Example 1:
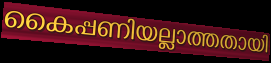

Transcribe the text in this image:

കൈപ്പണിയല്ലാത്തതായി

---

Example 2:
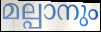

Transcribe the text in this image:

മല്പാനും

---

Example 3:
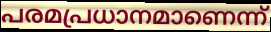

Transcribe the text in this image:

പരമപ്രധാനമാണെന്ന്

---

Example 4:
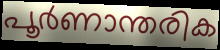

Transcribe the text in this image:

പൂർണാന്തരിക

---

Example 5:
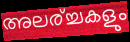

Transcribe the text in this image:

അലര്ച്ചകളും